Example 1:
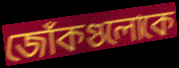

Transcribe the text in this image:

জোঁকগুলোকে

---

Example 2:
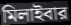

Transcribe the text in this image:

মিলাইবার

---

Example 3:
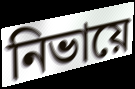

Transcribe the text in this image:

নিভায়ে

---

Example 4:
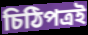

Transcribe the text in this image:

চিঠিপত্রই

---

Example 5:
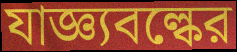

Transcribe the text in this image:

যাজ্ঞ্যবল্কের